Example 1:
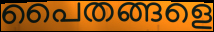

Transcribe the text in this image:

പൈതങ്ങളെ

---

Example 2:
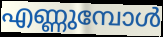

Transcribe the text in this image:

എണ്ണുമ്പോൾ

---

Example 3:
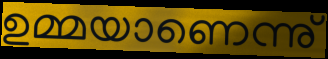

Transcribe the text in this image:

ഉമ്മയാണെന്നു്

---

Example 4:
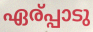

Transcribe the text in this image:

ഏര്പ്പാടു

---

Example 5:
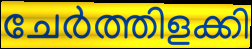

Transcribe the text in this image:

ചേർത്തിളക്കി